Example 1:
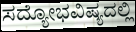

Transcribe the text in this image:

ಸದ್ಯೋಭವಿಷ್ಯದಲ್ಲಿ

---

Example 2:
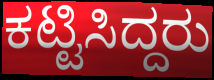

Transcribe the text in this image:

ಕಟ್ಟಿಸಿದ್ದರು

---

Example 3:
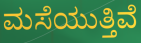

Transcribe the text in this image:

ಮಸೆಯುತ್ತಿವೆ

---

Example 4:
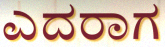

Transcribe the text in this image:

ಎದರಾಗ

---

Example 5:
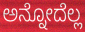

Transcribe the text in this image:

ಅನ್ನೋದೆಲ್ಲ